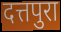
दत्तपुरा